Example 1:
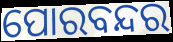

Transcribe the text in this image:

ପୋରବନ୍ଦର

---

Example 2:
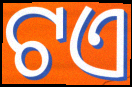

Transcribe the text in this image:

ଟଏ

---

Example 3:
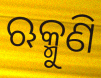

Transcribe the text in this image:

ଋକ୍ମୁଣି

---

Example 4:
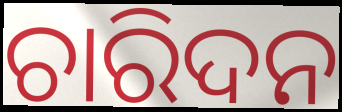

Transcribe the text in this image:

ଚାରିଦନ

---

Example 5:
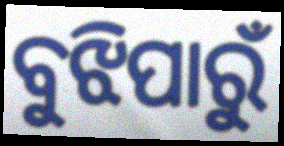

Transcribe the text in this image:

ବୁଝିପାରୁଁ